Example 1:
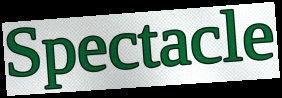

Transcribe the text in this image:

Spectacle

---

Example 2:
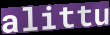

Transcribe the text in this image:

alittu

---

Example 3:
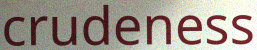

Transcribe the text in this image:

crudeness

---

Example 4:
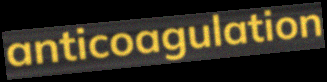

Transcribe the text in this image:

anticoagulation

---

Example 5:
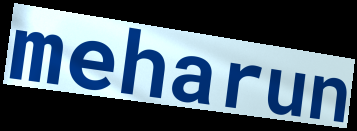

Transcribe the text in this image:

meharun